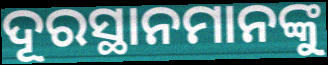
ଦୂରସ୍ଥାନମାନଙ୍କୁ